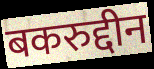
बकरुद्दीन